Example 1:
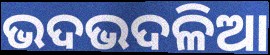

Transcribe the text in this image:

ଭଦଭଦଳିଆ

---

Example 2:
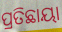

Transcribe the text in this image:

ପ୍ରତିଛାୟା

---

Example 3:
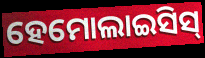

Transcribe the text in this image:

ହେମୋଲାଇସିସ୍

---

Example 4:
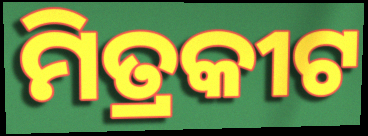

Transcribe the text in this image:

ମିତ୍ରକୀଟ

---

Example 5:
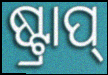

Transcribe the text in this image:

ଷ୍ଟ୍ରାପ୍